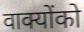
वाक्योंको